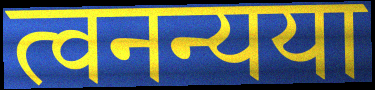
त्वनन्यया